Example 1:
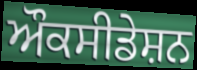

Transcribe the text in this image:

ਔਕਸੀਡੇਸ਼ਨ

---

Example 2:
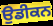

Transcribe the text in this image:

ਉਡੀਕਨ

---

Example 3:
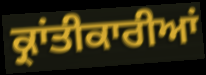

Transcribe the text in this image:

ਕ੍ਰਾਂਤੀਕਾਰੀਆਂ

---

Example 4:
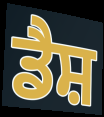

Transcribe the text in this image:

ਡੈਸ਼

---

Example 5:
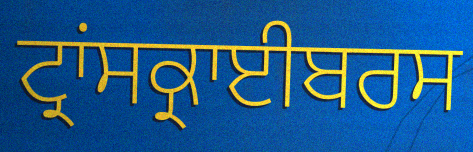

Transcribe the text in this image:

ਟ੍ਰਾਂਸਕ੍ਰਾਈਬਰਸ